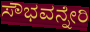
ಸೌಭವನ್ನೇರಿ